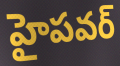
హైపవర్